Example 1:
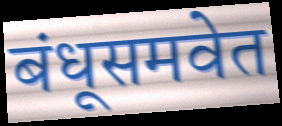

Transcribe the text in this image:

बंधूसमवेत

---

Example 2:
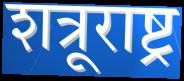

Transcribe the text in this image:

शत्रूराष्ट्र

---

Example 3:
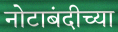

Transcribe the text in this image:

नोटाबंदीच्या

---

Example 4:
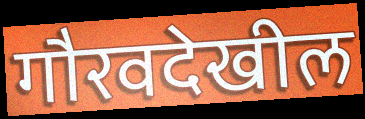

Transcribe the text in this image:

गौरवदेखील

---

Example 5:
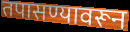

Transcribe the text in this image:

तपासण्यावरून